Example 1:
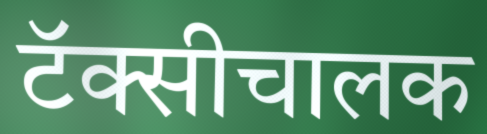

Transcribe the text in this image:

टॅक्सीचालक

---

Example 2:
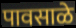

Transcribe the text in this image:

पावसाळे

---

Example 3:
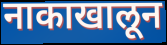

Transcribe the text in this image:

नाकाखालून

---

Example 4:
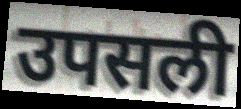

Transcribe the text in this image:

उपसली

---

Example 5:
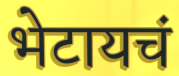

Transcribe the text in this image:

भेटायचं